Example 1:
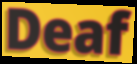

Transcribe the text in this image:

Deaf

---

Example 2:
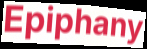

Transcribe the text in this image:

Epiphany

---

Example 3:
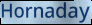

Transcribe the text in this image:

Hornaday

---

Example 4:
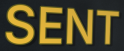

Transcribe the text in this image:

SENT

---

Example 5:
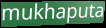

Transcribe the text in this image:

mukhaputa